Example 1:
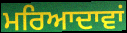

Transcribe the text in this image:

ਮਰਿਆਦਾਵਾਂ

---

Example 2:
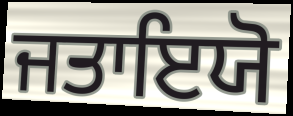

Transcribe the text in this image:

ਜਤਾਇਯੋ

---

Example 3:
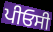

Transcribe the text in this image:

ਪੀਓਸੀ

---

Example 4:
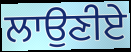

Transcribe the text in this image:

ਲਾਉਣੀਏ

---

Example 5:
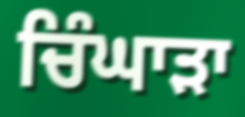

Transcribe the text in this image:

ਚਿੰਘਾੜਾ